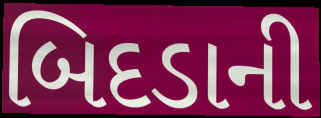
બિદડાની